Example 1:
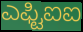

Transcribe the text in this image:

ಎಫ್ಟಿಐಐ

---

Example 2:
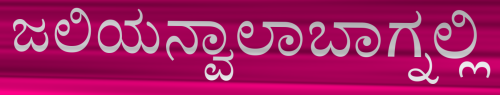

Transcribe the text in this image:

ಜಲಿಯನ್ವಾಲಾಬಾಗ್ನಲ್ಲಿ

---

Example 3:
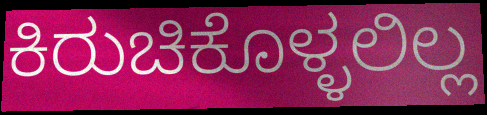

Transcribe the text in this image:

ಕಿರುಚಿಕೊಳ್ಳಲಿಲ್ಲ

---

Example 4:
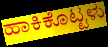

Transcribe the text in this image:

ಹಾಕಿಕೊಟ್ಟಳು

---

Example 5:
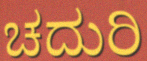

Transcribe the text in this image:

ಚದುರಿ